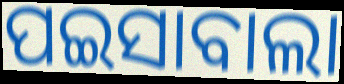
ପଇସାବାଲା